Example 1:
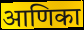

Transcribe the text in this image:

आणिका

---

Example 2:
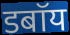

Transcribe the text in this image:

डबॉय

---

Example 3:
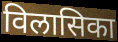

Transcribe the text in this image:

विलासिका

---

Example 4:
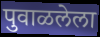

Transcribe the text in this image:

पुवाळलेला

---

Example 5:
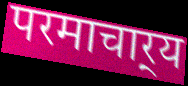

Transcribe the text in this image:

परमाचार्य